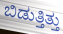
ಬಿಡುತ್ತಿತ್ತು